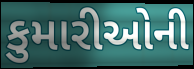
કુમારીઓની